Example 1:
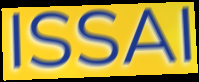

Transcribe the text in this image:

ISSAI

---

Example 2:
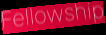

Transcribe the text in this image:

Fellowship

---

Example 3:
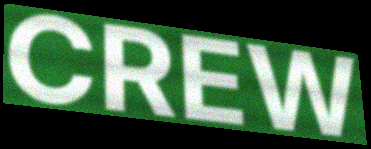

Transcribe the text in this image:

CREW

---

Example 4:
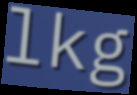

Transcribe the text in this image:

lkg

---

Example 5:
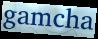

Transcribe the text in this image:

gamcha